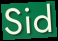
Sid